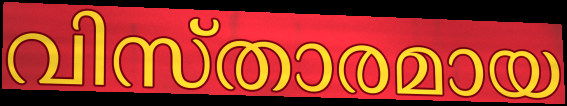
വിസ്താരമായ